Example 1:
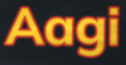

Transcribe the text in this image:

Aagi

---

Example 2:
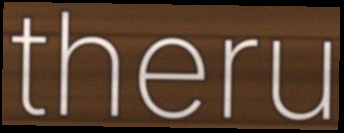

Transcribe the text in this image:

theru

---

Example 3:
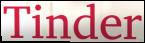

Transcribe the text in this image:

Tinder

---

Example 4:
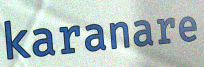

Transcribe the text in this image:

karanare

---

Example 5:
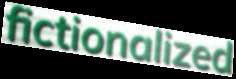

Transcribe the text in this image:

fictionalized